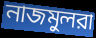
নাজমুলরা